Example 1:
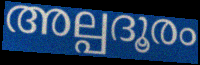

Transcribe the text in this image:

അല്പദൂരം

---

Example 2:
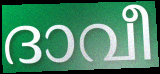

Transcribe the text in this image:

ദാവീ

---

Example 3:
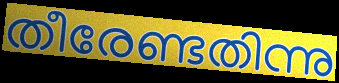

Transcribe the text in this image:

തീരേണ്ടതിന്നു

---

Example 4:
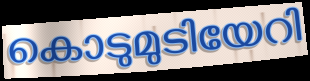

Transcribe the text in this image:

കൊടുമുടിയേറി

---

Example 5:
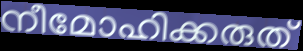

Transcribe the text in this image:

നീമോഹിക്കരുത്